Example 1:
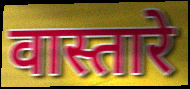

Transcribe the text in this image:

वास्तारे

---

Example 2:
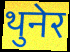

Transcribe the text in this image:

थुनेर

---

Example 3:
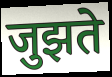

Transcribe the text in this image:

जुझते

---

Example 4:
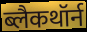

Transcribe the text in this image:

ब्लैकथॉर्न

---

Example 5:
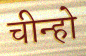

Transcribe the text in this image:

चीन्हो